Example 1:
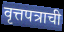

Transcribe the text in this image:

वृत्तपत्राची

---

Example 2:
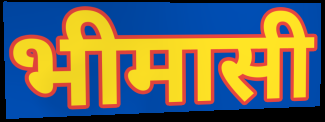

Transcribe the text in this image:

भीमासी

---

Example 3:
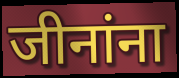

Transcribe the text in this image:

जीनांना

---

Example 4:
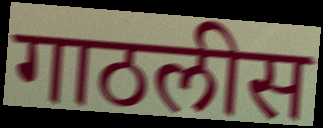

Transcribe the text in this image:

गाठलीस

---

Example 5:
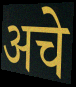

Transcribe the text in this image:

अचे